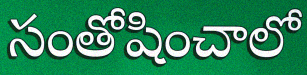
సంతోషించాలో